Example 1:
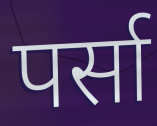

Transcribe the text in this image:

पर्सा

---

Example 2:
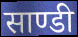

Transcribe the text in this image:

साण्डी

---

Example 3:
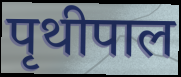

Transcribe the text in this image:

पृथीपाल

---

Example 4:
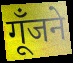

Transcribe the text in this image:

गूँजने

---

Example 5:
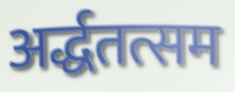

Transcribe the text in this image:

अर्द्धतत्सम